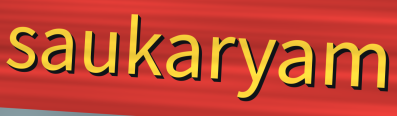
saukaryam